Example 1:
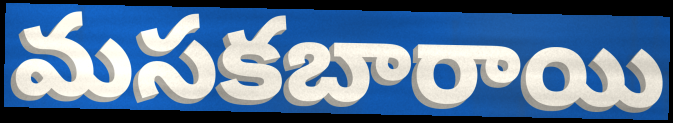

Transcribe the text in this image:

మసకబారాయి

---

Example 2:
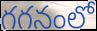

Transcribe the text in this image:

గగనంలో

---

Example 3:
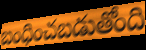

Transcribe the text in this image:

బంధించబడుతోంది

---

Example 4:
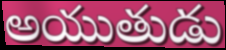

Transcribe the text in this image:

అయుతుడు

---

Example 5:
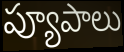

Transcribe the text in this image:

ప్యూపాలు